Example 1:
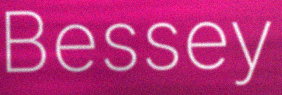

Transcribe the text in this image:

Bessey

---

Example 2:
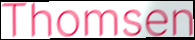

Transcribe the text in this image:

Thomsen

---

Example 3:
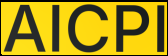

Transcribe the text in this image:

AICPI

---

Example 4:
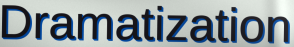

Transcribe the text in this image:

Dramatization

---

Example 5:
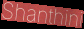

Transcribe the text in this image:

Shanthini